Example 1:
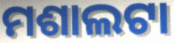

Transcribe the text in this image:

ମଶାଲଟା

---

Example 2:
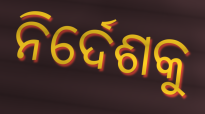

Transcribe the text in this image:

ନିର୍ଦେଶକୁ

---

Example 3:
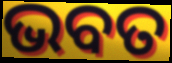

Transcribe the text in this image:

ଭବତ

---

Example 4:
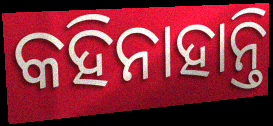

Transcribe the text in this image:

କହିନାହାନ୍ତି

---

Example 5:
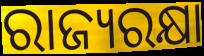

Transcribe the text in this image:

ରାଜ୍ୟରକ୍ଷା